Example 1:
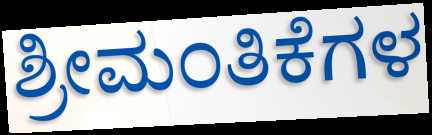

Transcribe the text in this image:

ಶ್ರೀಮಂತಿಕೆಗಳ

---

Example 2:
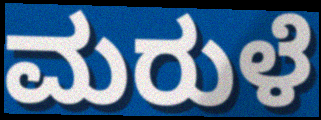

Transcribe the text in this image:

ಮರುಳೆ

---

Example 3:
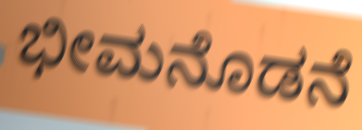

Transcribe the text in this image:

ಭೀಮನೊಡನೆ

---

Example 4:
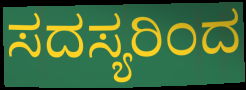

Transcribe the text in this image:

ಸದಸ್ಯರಿಂದ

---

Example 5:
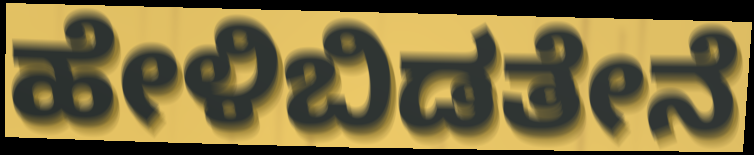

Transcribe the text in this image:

ಹೇಳಿಬಿಡತೇನೆ